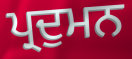
ਪ੍ਰਦੁਮਨ